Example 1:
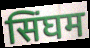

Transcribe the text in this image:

सिंघम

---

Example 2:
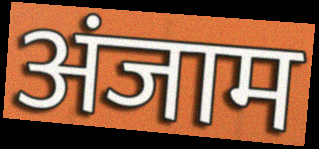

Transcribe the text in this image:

अंजाम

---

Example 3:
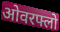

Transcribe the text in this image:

ओवरफ्लो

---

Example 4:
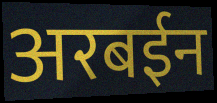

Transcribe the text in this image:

अरबईन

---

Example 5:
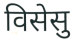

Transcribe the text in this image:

विसेसु